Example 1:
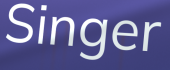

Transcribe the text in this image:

Singer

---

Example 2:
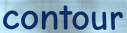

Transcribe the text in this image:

contour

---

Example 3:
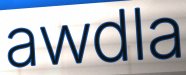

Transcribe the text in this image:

awdla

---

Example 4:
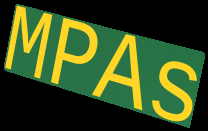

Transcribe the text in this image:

MPAs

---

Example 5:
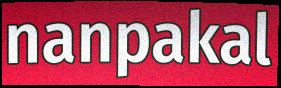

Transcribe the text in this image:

nanpakal